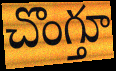
చొంగ్తూ